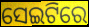
ସେଇଟିରେ